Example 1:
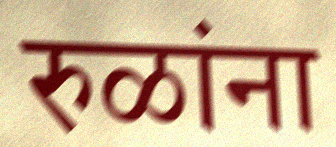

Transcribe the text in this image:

रुळांना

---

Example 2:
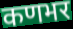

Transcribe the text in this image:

कणभर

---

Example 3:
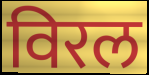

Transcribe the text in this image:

विरल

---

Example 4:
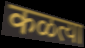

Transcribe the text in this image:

कळत्या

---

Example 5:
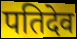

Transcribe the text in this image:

पतिदेव